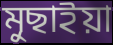
মুছাইয়া